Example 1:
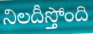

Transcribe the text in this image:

నిలదీస్తోంది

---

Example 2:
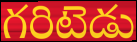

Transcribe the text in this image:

గరిటెడు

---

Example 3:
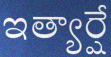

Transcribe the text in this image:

ఇత్యార్షే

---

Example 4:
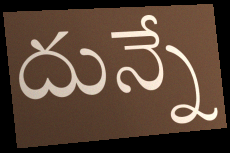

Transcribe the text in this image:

దున్నే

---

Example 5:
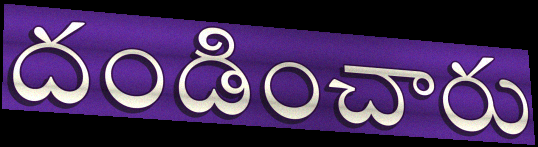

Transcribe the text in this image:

దండించారు